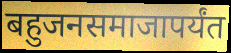
बहुजनसमाजापर्यंत